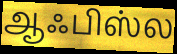
ஆஃபிஸ்ல